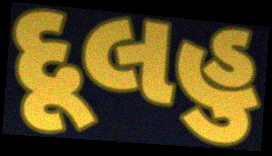
દૂલહુ